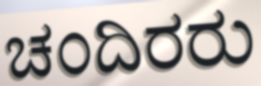
ಚಂದಿರರು